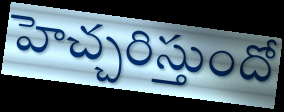
హెచ్చరిస్తుందో